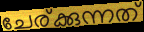
ചേര്ക്കുന്നത്